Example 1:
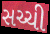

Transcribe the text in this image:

સચ્ચી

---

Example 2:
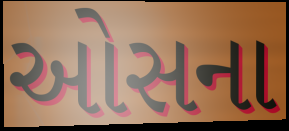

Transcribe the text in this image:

ઓસના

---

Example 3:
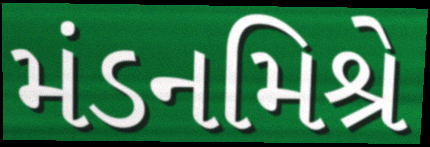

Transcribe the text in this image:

મંડનમિશ્રે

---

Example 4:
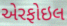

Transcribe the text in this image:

એરફોઇલ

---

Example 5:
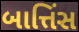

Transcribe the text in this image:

બાત્તિંસ